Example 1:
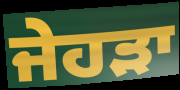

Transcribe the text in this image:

ਜੇਹੜਾ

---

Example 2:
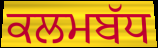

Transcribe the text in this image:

ਕਲਮਬੱਧ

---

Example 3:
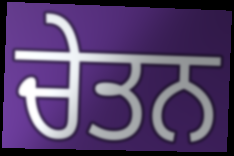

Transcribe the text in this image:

ਚੇਤਨ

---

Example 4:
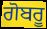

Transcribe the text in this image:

ਗੋਬਰੂ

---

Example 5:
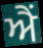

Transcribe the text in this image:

ਐੰ